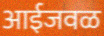
आईजवळ